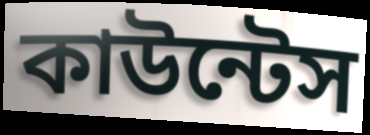
কাউন্টেস